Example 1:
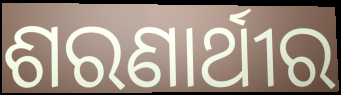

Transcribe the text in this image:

ଶରଣାର୍ଥୀର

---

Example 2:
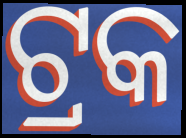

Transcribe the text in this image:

ଟ୍ରକ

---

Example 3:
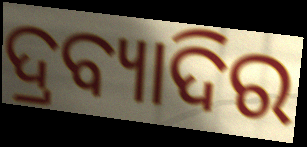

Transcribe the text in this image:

ଦ୍ରବ୍ୟାଦିର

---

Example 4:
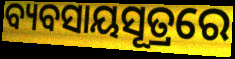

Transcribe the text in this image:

ବ୍ୟବସାୟସୂତ୍ରରେ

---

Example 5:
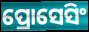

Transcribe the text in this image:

ପ୍ରୋସେସିଂ